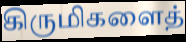
கிருமிகளைத்